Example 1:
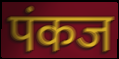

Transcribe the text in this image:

पंकज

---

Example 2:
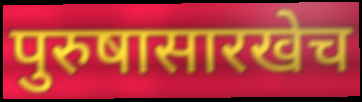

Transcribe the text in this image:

पुरुषासारखेच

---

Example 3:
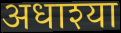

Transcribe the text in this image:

अधाश्या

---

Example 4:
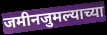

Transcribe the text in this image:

जमीनजुमल्याच्या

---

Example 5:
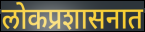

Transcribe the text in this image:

लोकप्रशासनात